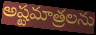
అష్టమాత్రలను